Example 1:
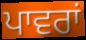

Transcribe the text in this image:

ਪਾਵਰਾਂ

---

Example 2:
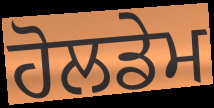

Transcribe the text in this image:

ਹੋਲਡੇਮ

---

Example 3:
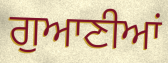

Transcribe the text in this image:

ਗੁਆਣੀਆਂ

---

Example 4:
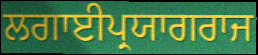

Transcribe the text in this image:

ਲਗਾਈਪ੍ਰਯਾਗਰਾਜ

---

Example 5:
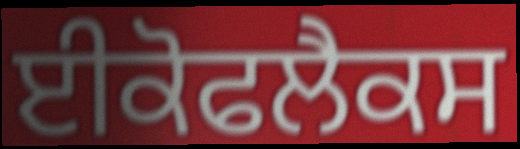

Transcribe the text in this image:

ਈਕੋਫਲੈਕਸ